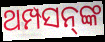
ଥମ୍ପସନ୍‌ଙ୍କ